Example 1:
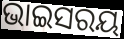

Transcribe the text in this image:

ଭାଇସରୟ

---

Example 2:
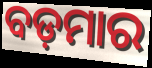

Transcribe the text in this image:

ବଡ଼ମାର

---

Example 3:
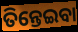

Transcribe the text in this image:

ତିନ୍ତେଇବା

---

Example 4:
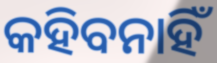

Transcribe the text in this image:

କହିବନାହିଁ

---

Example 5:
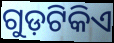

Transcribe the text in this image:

ଗୁଡ଼ଟିକିଏ